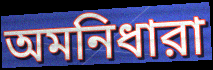
অমনিধারা